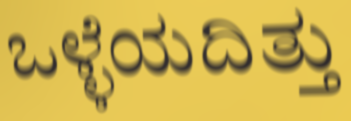
ಒಳ್ಳೆಯದಿತ್ತು